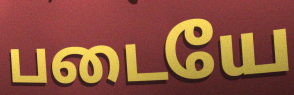
படையே